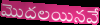
మొదలయినవే